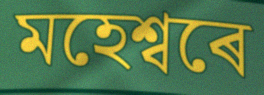
মহেশ্বৰে